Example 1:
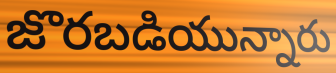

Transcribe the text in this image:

జొరబడియున్నారు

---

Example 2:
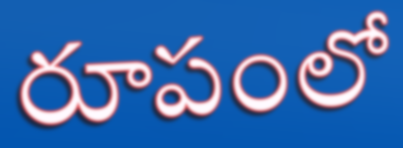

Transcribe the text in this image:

రూపంలో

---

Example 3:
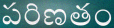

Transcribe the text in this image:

పరిణతం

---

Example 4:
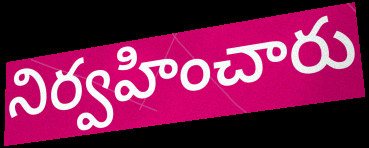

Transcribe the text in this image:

నిర్వహించారు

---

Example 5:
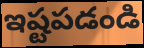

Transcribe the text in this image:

ఇష్టపడండి